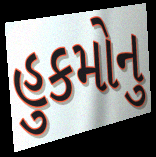
હુકમોનુ